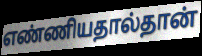
எண்ணியதால்தான்